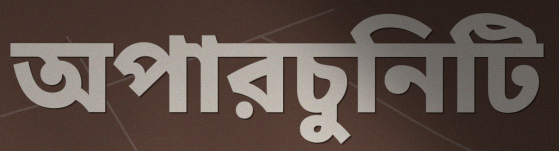
অপারচুনিটি